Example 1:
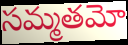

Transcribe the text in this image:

సమ్మతమో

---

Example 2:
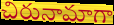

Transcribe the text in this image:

చిరునామాగా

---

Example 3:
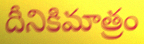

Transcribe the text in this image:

దీనికిమాత్రం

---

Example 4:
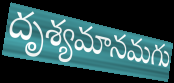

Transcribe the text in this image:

దృశ్యమానమగు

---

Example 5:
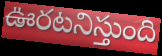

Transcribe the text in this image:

ఊరటనిస్తుంది